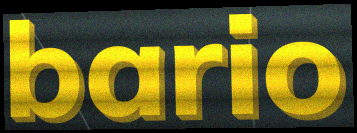
bario